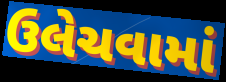
ઉલેચવામાં